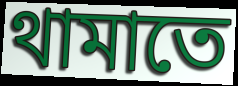
থামাতে